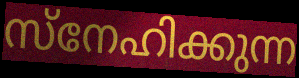
സ്നേഹിക്കുന്ന